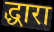
द्धारा